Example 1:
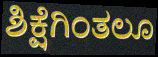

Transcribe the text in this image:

ಶಿಕ್ಷೆಗಿಂತಲೂ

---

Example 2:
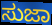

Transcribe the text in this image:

ಸುಜಾ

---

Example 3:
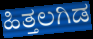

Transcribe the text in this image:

ಹಿತ್ತಲಗಿಡ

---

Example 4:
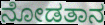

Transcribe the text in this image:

ನೋಡತಾನ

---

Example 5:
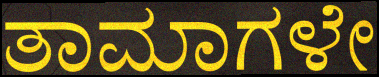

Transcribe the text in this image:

ತಾಮಾಗಳೇ